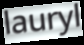
lauryl